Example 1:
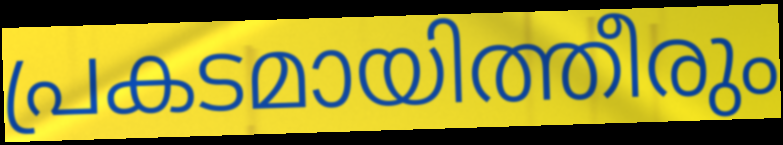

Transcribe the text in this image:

പ്രകടമായിത്തീരും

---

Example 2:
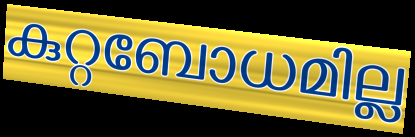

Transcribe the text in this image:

കുറ്റബോധമില്ല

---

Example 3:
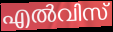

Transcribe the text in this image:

എൽവിസ്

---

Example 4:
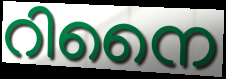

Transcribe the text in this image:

റിനൈ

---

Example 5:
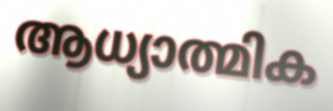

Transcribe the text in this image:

ആധ്യാത്മിക